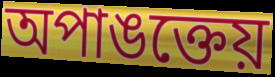
অপাঙক্তেয়